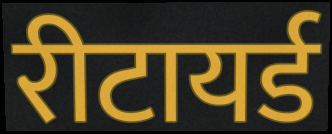
रीटायर्ड